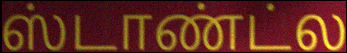
ஸ்டாண்ட்ல